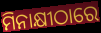
ମିନାକ୍ଷୀଠାରେ